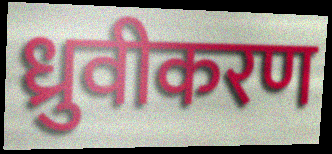
ध्रुवीकरण